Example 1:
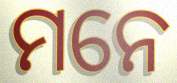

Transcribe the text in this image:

ମନେ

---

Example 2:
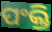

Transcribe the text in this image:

ପଂକ୍ତି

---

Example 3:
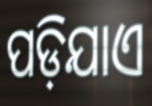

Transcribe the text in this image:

ପଡ଼ିଯାଏ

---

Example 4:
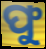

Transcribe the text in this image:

ଫୁ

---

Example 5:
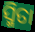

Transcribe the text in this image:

ସ୍ମିତା